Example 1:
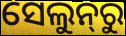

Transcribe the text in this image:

ସେଲୁନ୍‌ରୁ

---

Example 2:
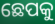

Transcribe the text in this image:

ଛେପକୁ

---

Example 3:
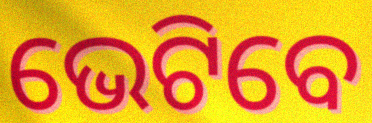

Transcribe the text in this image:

ଭେଟିବେ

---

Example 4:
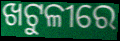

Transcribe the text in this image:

ଖଟୁଳୀରେ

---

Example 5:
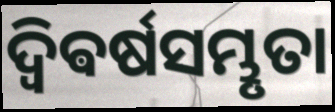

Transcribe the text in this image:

ଦ୍ଵିଵର୍ଷସମ୍ଭୃତା